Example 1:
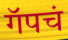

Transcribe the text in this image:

गॅपचं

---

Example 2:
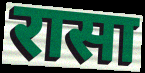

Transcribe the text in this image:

रासा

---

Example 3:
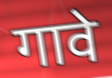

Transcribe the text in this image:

गावे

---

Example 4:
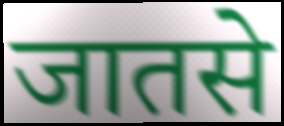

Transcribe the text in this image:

जातसे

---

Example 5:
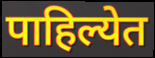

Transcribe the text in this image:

पाहिल्येत